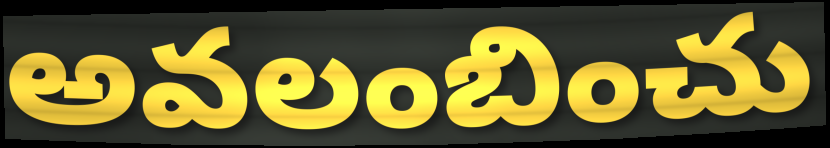
అవలంబించు